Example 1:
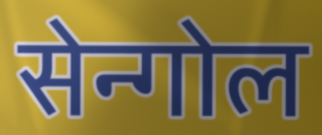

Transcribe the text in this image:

सेन्गोल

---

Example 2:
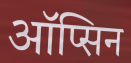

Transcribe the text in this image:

ऑप्सिन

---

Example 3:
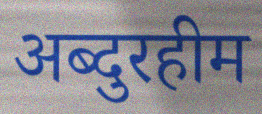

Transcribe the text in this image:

अब्दुरहीम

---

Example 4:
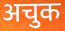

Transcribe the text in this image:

अचुक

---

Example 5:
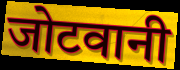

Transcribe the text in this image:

जोटवानी